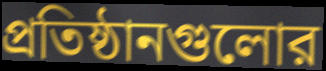
প্রতিষ্ঠানগুলোর